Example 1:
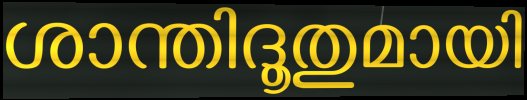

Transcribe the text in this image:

ശാന്തിദൂതുമായി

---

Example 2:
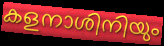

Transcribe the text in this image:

കളനാശിനിയും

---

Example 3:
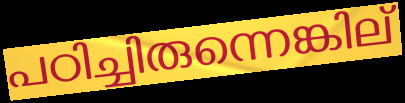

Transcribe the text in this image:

പഠിച്ചിരുന്നെങ്കില്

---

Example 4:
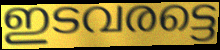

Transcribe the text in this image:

ഇടവരട്ടെ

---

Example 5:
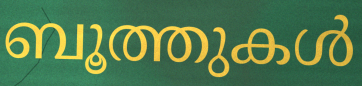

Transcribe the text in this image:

ബൂത്തുകൾ